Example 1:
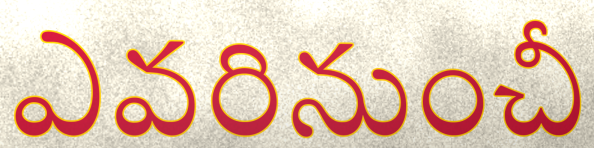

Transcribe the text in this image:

ఎవరినుంచీ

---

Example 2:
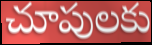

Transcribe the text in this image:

చూపులకు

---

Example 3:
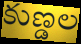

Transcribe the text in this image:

కుణ్డల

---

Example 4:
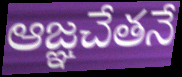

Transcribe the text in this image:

ఆజ్ఞచేతనే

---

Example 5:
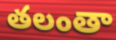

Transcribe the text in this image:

తలంతా